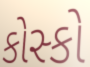
કોસ્કો